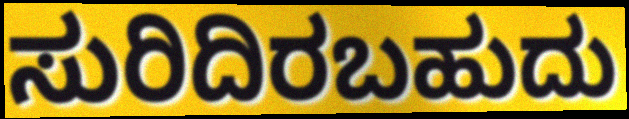
ಸುರಿದಿರಬಹುದು